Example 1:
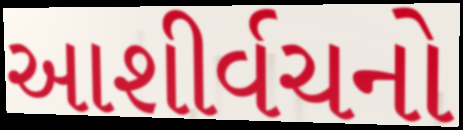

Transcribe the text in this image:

આશીર્વચનો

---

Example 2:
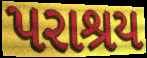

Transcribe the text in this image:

પરાશ્રય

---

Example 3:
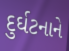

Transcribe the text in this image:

દુર્ઘટનાને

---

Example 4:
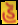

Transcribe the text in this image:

હૅ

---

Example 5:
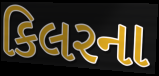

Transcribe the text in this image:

કિલરના